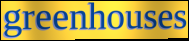
greenhouses